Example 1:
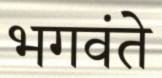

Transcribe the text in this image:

भगवंते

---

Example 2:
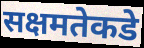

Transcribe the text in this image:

सक्षमतेकडे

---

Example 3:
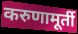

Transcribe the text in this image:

करुणामूर्ती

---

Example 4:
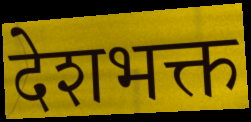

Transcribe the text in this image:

देशभक्त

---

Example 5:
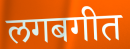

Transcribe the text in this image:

लगबगीत